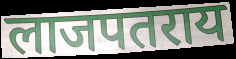
लाजपतराय